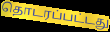
தொடரப்பட்டது